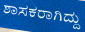
ಶಾಸಕರಾಗಿದ್ದು